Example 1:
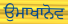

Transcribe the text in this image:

ਉਮਾਖਾਨੋਵ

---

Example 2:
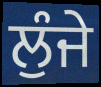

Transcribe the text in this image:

ਲੁੰਜੇ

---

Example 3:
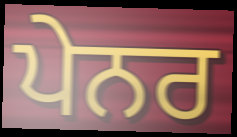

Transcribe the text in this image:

ਪੇਨਰ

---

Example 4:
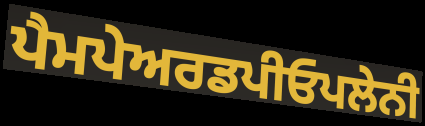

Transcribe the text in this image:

ਪੈਮਪੇਅਰਡਪੀਓਪਲੇਨੀ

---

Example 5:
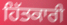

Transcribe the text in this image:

ਹਿੱਤਕਾਰੀ